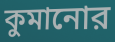
কুমানোর